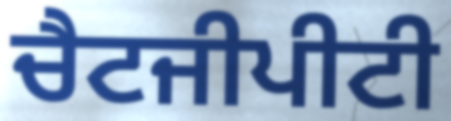
ਚੈਟਜੀਪੀਟੀ